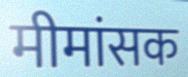
मीमांसक